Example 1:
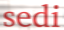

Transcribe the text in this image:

sedi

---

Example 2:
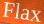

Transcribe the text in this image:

Flax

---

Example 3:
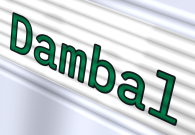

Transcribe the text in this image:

Dambal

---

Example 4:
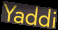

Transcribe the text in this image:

Yaddi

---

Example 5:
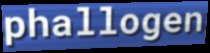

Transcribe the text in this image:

phallogen